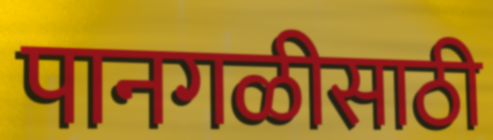
पानगळीसाठी